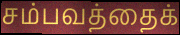
சம்பவத்தைக்